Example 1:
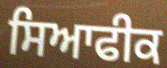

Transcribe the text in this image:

ਸਿਆਫੀਕ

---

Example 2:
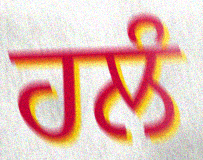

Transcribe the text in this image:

ਹਲੰ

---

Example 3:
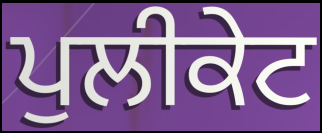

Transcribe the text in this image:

ਪੁਲੀਕੇਟ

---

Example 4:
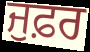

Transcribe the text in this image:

ਜੁਫ਼ਰ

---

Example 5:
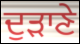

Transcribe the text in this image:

ਦੁੜਾਣੇ